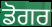
ਡੋਗਰ